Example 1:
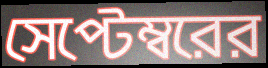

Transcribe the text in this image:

সেপ্টেম্বরের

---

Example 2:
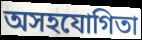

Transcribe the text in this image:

অসহযোগিতা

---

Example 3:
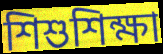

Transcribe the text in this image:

শিশুশিক্ষা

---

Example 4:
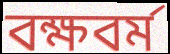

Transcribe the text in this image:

বক্ষবর্ম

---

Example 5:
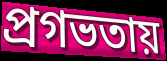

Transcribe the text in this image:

প্রগভতায়